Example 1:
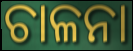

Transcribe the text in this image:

ଚାଳନା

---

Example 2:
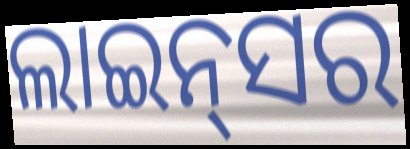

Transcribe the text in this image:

ଲାଇନ୍‌ସର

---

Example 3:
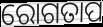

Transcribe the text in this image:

ରୋଗତାପ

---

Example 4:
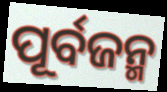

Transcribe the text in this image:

ପୂର୍ବଜନ୍ମ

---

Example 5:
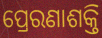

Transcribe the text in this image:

ପ୍ରେରଣାଶକ୍ତି